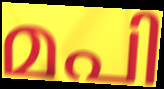
മപി